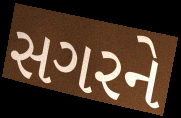
સગરને